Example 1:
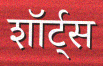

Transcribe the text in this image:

शॉर्ट्स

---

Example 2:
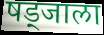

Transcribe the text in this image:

षड्जाला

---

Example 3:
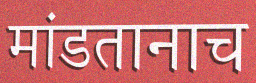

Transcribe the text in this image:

मांडतानाच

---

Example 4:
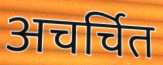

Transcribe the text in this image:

अचर्चित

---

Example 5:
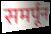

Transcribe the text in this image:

समर्पून